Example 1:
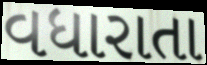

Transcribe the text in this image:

વધારાતા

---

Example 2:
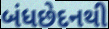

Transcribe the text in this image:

બંધછેદનથી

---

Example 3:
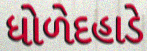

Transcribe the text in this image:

ધોળેદહાડે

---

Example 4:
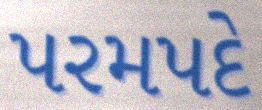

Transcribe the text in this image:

પરમપદે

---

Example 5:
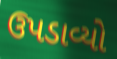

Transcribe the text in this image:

ઉપડાવ્યો